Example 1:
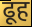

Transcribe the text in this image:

ढूह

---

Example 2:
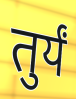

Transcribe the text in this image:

तुर्यं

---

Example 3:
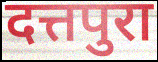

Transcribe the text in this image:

दत्तपुरा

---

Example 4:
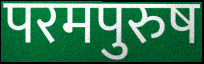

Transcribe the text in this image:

परमपुरुष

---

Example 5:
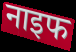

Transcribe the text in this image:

नाइफ